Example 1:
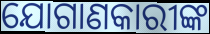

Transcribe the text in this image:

ଯୋଗାଣକାରୀଙ୍କ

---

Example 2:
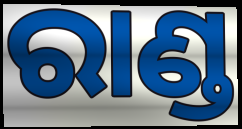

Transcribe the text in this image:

ରାଣ୍ଡ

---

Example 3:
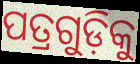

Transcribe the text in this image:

ପତ୍ରଗୁଡ଼ିକୁ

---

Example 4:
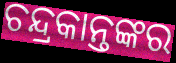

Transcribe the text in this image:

ଚନ୍ଦ୍ରକାନ୍ତଙ୍କର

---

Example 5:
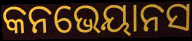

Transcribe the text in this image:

କନଭେୟାନସ